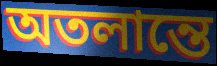
অতলান্তে